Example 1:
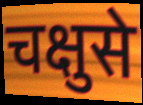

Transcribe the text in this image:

चक्षुसे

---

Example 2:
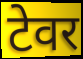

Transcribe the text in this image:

टेवर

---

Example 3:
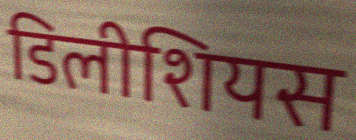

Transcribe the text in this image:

डिलीशियस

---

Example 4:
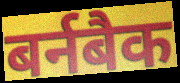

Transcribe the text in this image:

बर्नबैक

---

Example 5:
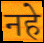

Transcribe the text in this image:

नहे